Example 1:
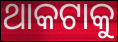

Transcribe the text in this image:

ଥାକଟାକୁ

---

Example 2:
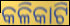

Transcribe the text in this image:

କଳିକାଟି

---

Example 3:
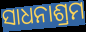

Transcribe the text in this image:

ସାଧନାଶ୍ରମ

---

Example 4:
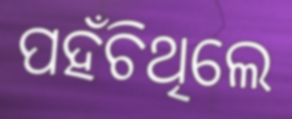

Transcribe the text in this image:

ପହଁଚିଥିଲେ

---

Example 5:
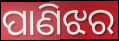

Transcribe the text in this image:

ପାଣିଝର